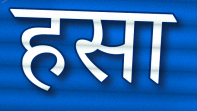
हसा